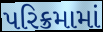
પરિક્રમામાં